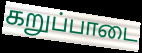
கறுப்பாடை